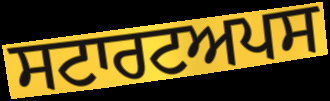
ਸਟਾਰਟਅਪਸ